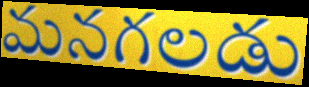
మనగలడు